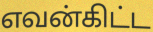
எவன்கிட்ட